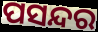
ପସନ୍ଦର